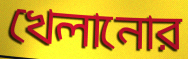
খেলানোর